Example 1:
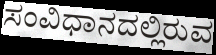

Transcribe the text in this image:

ಸಂವಿಧಾನದಲ್ಲಿರುವ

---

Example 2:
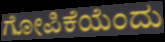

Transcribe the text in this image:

ಗೋಪಿಕೆಯೆಂದು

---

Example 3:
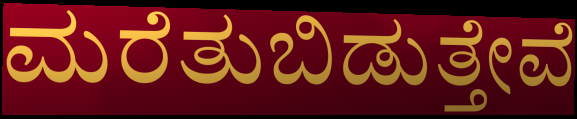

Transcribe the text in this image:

ಮರೆತುಬಿಡುತ್ತೇವೆ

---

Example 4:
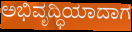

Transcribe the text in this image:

ಅಭಿವೃದ್ಧಿಯಾದಾಗ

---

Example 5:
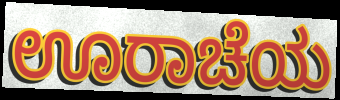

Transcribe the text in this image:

ಊರಾಚೆಯ